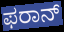
ಫರಾನ್